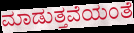
ಮಾಡುತ್ತವೆಯಂತೆ